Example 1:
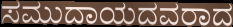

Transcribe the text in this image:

ಸಮುದಾಯದವರಾದ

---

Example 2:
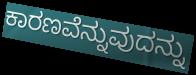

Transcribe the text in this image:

ಕಾರಣವೆನ್ನುವುದನ್ನು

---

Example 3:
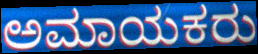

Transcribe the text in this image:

ಅಮಾಯಕರು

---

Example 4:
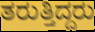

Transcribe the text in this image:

ತರುತ್ತಿದ್ದರು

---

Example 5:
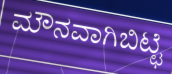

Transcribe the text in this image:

ಮೌನವಾಗಿಬಿಟ್ಟೆ